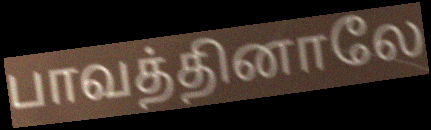
பாவத்தினாலே